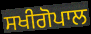
ਸਖੀਗੋਪਾਲ